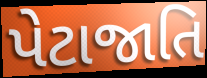
પેટાજાતિ